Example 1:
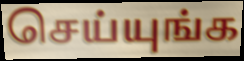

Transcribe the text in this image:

செய்யுங்க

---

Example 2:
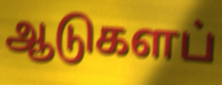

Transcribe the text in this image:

ஆடுகளப்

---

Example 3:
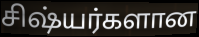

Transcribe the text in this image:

சிஷ்யர்களான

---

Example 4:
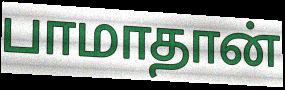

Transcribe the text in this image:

பாமாதான்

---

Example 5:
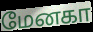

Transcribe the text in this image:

மேனகா